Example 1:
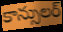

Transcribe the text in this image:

కాన్సులర్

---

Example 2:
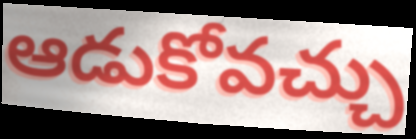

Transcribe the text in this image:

ఆడుకోవచ్చు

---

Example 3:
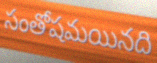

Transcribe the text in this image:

సంతోషమయినది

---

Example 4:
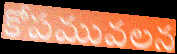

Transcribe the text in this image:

కోపమువలన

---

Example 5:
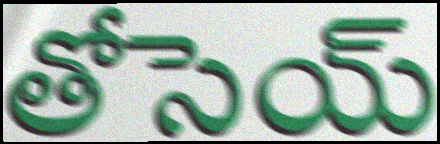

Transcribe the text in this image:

తోసెయ్